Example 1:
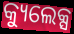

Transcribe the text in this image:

କ୍ୟୁଲେକ୍ସ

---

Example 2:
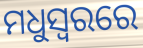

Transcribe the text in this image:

ମଧୁସ୍ୱରରେ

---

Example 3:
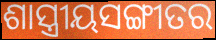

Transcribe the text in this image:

ଶାସ୍ତ୍ରୀୟସଙ୍ଗୀତର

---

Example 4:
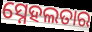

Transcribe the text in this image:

ସ୍ନେହଲତାର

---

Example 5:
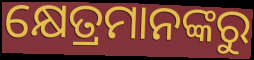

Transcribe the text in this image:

କ୍ଷେତ୍ରମାନଙ୍କରୁ